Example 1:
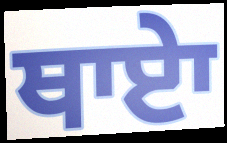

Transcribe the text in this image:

ਥਾਏਾ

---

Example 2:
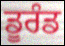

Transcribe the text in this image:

ਡੂਰੰਡ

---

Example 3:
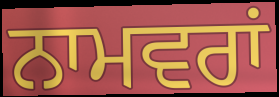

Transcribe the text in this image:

ਨਾਮਵਰਾਂ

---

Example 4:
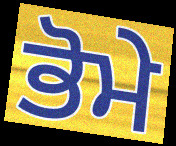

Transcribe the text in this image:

ਭੋਮੇ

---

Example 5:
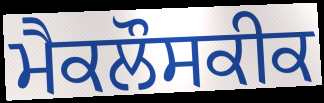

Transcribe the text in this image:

ਮੈਕਲੌਸਕੀਕ